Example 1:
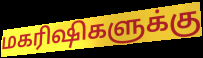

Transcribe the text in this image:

மகரிஷிகளுக்கு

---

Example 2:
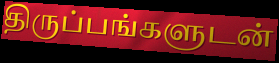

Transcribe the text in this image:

திருப்பங்களுடன்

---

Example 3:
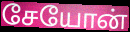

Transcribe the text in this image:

சேயோன்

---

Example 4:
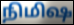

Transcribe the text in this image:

நிமிஷ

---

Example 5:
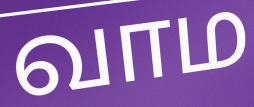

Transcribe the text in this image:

வாம